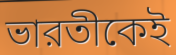
ভারতীকেই